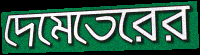
দেমেতেরের